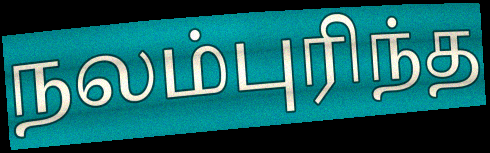
நலம்புரிந்த